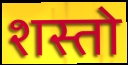
शस्तो